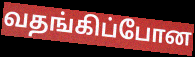
வதங்கிப்போன